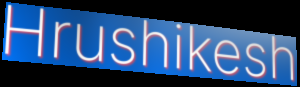
Hrushikesh